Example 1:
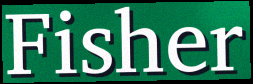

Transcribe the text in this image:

Fisher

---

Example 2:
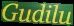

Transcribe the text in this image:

Gudilu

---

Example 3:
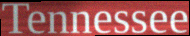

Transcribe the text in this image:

Tennessee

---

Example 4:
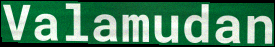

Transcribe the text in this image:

Valamudan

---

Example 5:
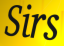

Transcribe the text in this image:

Sirs